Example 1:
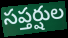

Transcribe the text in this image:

సప్తర్షుల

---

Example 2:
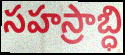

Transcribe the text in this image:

సహస్రాబ్ధి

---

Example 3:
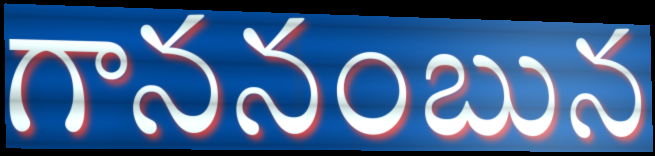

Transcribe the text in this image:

గాననంబున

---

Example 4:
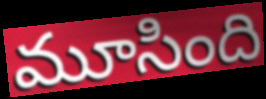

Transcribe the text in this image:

మూసింది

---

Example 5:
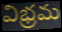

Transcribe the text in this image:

విభ్రమ